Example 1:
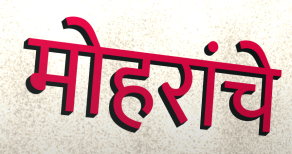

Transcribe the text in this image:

मोहरांचे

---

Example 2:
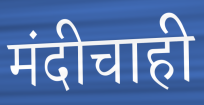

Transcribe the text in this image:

मंदीचाही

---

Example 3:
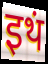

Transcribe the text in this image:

इथं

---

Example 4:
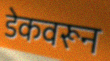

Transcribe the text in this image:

डेकवरून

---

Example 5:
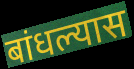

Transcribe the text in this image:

बांधल्यास